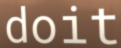
doit